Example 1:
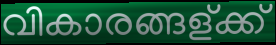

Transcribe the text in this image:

വികാരങ്ങള്ക്ക്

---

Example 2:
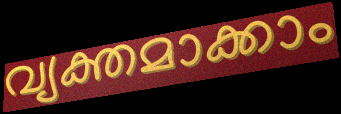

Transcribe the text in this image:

വ്യക്തമാക്കാം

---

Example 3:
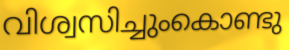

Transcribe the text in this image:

വിശ്വസിച്ചുംകൊണ്ടു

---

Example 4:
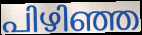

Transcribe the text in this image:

പിഴിഞ്ഞ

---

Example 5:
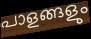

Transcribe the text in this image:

പാളങ്ങളും